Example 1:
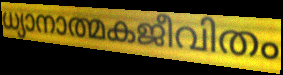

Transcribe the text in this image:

ധ്യാനാത്മകജീവിതം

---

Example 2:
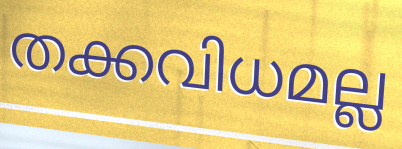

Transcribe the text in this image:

തക്കവിധമല്ല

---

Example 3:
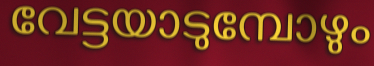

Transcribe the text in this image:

വേട്ടയാടുമ്പോഴും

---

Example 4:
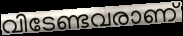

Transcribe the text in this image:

വിടേണ്ടവരാണ്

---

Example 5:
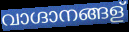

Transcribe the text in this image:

വാഗ്ദാനങ്ങള്